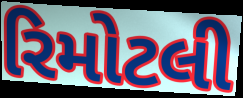
રિમોટલી